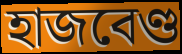
হাজবেণ্ড